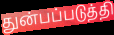
துன்பப்படுத்தி